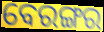
ବେରଙ୍ଗର